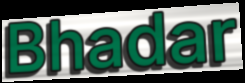
Bhadar